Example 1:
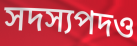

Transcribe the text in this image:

সদস্যপদও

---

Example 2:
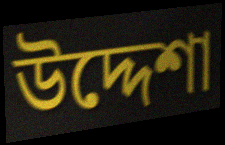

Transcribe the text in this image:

উদ্দেশা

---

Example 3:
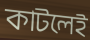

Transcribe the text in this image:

কাটলেই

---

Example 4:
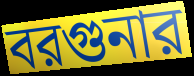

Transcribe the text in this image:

বরগুনার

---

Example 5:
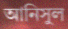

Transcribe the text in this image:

আনিসুল